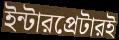
ইন্টারপ্রেটারই